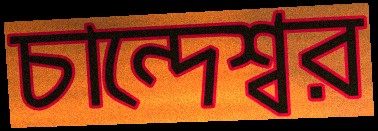
চান্দেশ্বর